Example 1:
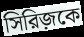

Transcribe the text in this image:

সিরিজ়কে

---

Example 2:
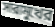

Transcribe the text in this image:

সারামুখের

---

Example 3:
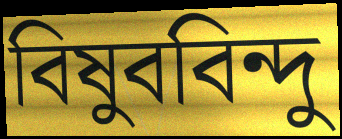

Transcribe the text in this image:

বিষুববিন্দু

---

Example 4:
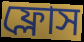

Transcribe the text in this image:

ফ্লোস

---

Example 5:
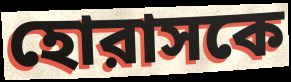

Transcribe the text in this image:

হোরাসকে